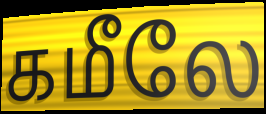
கமீலே